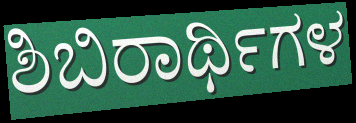
ಶಿಬಿರಾರ್ಥಿಗಳ